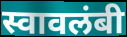
स्वावलंबी